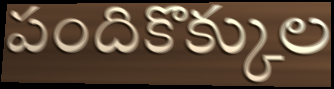
పందికొక్కుల